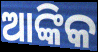
ଆଙ୍କିକ